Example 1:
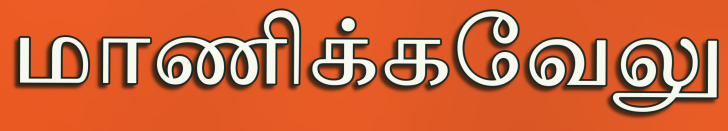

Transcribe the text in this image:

மாணிக்கவேலு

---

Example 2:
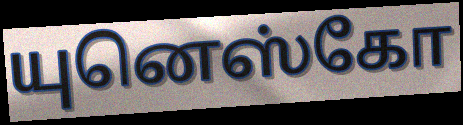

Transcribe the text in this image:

யுனெஸ்கோ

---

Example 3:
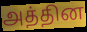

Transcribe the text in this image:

அத்தின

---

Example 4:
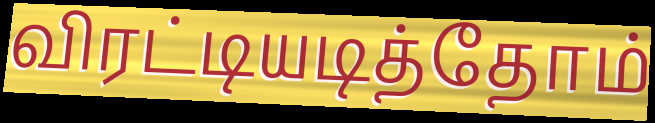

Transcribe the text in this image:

விரட்டியடித்தோம்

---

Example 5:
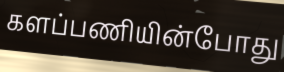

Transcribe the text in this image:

களப்பணியின்போது